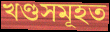
খণ্ডসমূহত